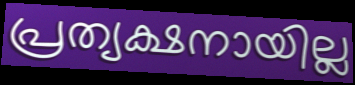
പ്രത്യക്ഷനായില്ല